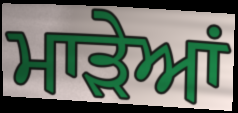
ਮਾੜੇਆਂ